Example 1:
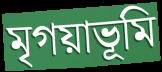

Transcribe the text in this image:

মৃগয়াভূমি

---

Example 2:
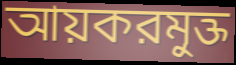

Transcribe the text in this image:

আয়করমুক্ত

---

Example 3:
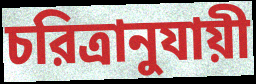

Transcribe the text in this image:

চরিত্রানুযায়ী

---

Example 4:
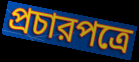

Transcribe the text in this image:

প্রচারপত্রে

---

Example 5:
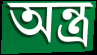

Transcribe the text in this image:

অন্ত্র